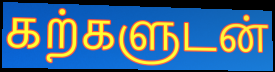
கற்களுடன்